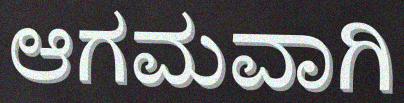
ಆಗಮವಾಗಿ